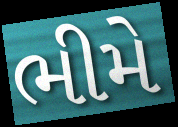
ભીમે